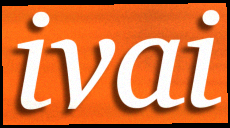
ivai